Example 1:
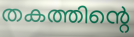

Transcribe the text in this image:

തകത്തിന്റെ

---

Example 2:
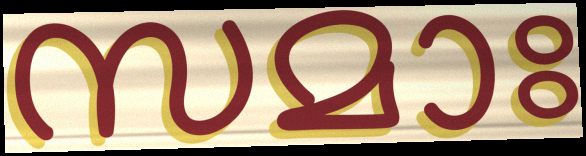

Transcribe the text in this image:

സമാഃ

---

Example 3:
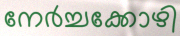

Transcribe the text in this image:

നേർച്ചക്കോഴി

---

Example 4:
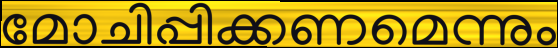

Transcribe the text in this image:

മോചിപ്പിക്കണമെന്നും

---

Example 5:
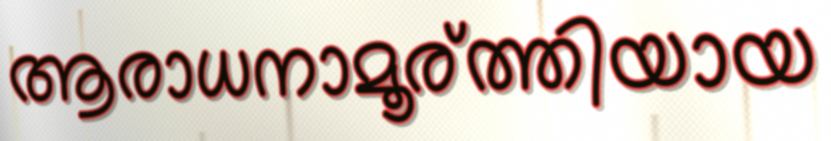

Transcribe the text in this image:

ആരാധനാമൂര്ത്തിയായ